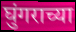
घुंगराच्या